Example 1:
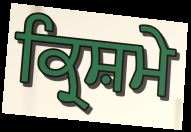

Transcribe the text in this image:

ਕ੍ਰਿਸ਼ਮੇ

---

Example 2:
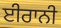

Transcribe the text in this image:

ਈਰਾਨੀ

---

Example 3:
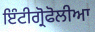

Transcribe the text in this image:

ਇੰਟੀਗ੍ਰੋਫੋਲੀਆ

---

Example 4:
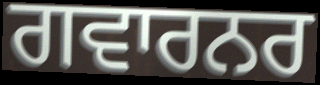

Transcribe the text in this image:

ਗਵਾਰਨਰ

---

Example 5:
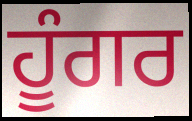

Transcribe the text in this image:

ਹੂੰਗਰ